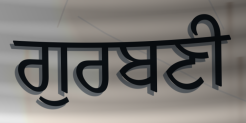
ਗੁਰਬਣੀ